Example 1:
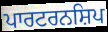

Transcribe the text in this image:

ਪਾਰਟਰਨਸ਼ਿਪ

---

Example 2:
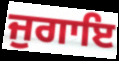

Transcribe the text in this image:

ਜੁਗਾਇ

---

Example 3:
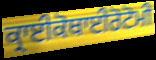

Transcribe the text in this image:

ਕ੍ਰਾਈਕੋਥਾਈਰੋਟੋਮੀ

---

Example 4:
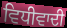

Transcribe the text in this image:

ਵਿਧੀਵਾਦੀ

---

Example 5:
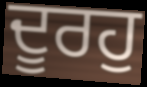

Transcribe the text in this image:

ਦੂਰਹੁ